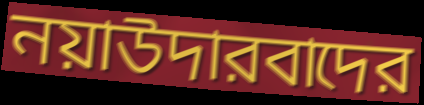
নয়াউদারবাদের